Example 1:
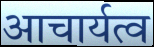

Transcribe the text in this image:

आचार्यत्व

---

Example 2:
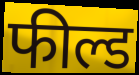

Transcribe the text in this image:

फील्‍ड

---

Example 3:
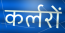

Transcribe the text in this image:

कर्लरों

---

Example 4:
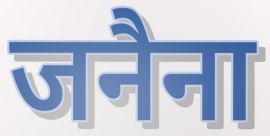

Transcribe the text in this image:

जनैना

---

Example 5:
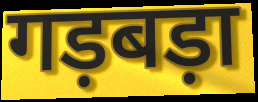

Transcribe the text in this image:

गड़बड़ा